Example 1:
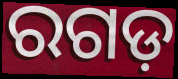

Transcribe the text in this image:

ରଗଡ଼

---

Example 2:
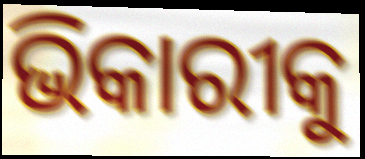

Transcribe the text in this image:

ଭିକାରୀକୁ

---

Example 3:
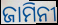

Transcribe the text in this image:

ଜାମିନୀ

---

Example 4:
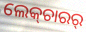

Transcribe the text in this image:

ଲେକ୍‍ଚାରର୍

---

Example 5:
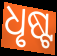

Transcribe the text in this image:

ଧୃଷ୍ଟ